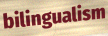
bilingualism